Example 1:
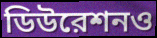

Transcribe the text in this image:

ডিউরেশনও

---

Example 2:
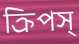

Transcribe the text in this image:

ক্রিপস্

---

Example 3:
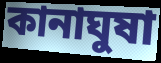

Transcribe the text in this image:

কানাঘুষা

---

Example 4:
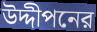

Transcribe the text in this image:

উদ্দীপনের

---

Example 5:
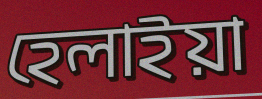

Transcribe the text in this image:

হেলাইয়া